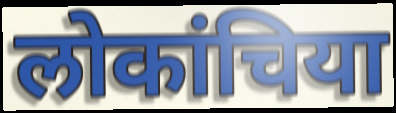
लोकांचिया